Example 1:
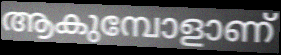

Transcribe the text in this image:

ആകുമ്പോളാണ്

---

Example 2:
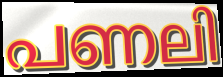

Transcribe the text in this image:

പണലി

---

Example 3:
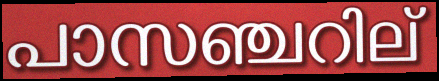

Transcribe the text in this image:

പാസഞ്ചറില്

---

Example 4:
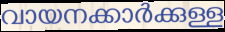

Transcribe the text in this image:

വായനക്കാർക്കുള്ള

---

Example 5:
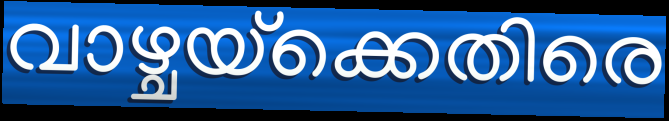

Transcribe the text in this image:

വാഴ്ചയ്‌ക്കെതിരെ